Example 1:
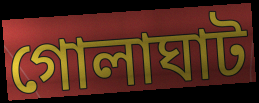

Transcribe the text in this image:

গোলাঘাট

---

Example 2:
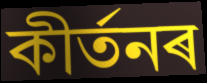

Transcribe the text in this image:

কীৰ্তনৰ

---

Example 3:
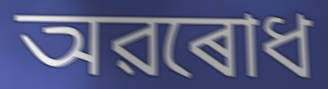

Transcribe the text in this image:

অৱৰোধ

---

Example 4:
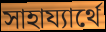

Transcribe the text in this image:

সাহায্যাৰ্থে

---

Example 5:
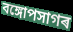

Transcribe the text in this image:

বঙ্গোপসাগৰ